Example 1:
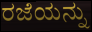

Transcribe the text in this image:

ರಜೆಯನ್ನು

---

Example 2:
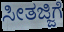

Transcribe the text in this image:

ಸೀತಜ್ಜಿಗೆ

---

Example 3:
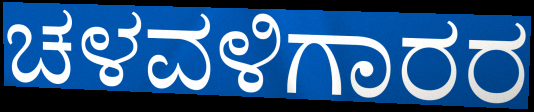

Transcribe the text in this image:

ಚಳವಳಿಗಾರರ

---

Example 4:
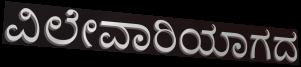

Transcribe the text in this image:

ವಿಲೇವಾರಿಯಾಗದ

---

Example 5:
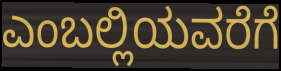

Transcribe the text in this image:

ಎಂಬಲ್ಲಿಯವರೆಗೆ